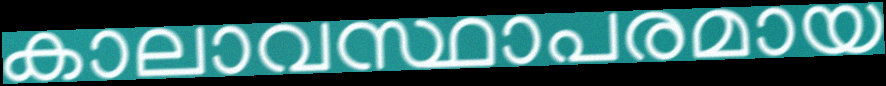
കാലാവസ്ഥാപരമായ